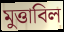
মুত্তাবিল